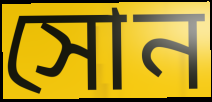
সোন